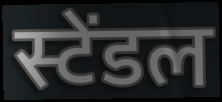
स्टेंडल